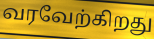
வரவேற்கிறது